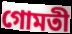
গোমতী